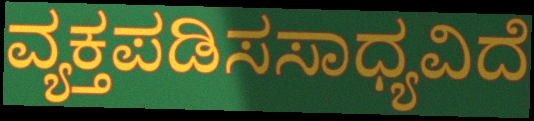
ವ್ಯಕ್ತಪಡಿಸಸಾಧ್ಯವಿದೆ